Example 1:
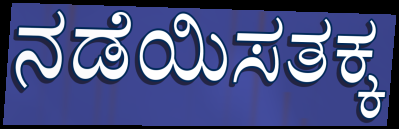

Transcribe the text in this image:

ನಡೆಯಿಸತಕ್ಕ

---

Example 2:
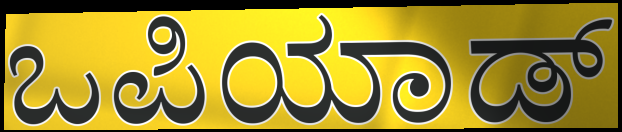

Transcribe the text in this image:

ಒಪಿಯಾಡ್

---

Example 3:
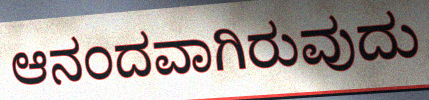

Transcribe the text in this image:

ಆನಂದವಾಗಿರುವುದು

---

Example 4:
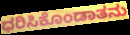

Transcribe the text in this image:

ಧರಿಸಿಕೊಂಡಾತನು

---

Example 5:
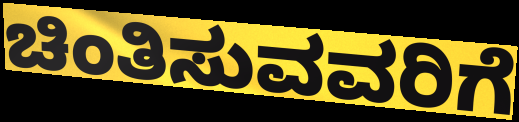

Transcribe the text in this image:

ಚಿಂತಿಸುವವರಿಗೆ